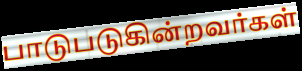
பாடுபடுகின்றவர்கள்